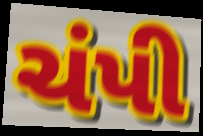
ચંપી